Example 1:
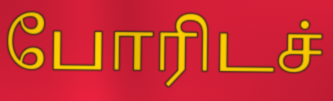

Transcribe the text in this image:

போரிடச்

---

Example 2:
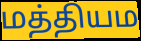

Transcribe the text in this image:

மத்தியம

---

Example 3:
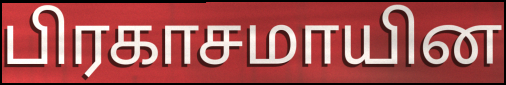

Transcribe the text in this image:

பிரகாசமாயின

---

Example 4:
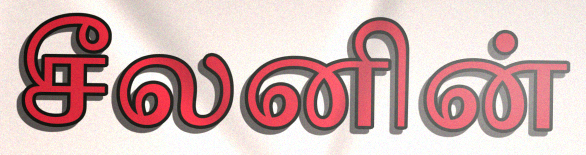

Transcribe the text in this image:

சீலனின்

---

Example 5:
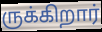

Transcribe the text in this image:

ருக்கிறார்